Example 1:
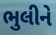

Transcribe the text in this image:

ભુલીને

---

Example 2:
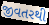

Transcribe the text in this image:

જીવતરથી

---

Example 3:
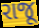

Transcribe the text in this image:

રાજૂ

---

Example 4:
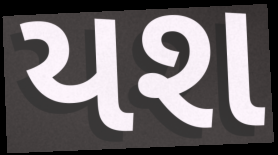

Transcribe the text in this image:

યશ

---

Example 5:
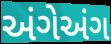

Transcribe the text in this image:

અંગેઅંગ